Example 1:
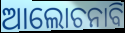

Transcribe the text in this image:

ଆଲୋଚନାବି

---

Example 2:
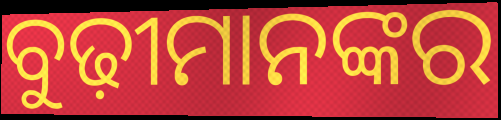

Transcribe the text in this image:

ବୁଢ଼ୀମାନଙ୍କର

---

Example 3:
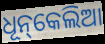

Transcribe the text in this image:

ଧୂନ୍‌କେଲିଆ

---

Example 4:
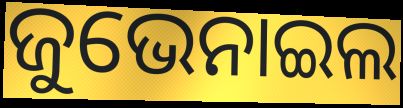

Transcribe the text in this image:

ଜୁଭେନାଇଲ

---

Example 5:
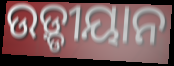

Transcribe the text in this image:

ଉଡ଼୍ଡୀୟାନ